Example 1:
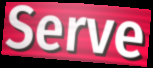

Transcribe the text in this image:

Serve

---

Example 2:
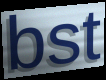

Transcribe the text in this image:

bst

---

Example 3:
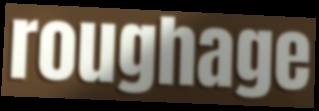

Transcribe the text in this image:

roughage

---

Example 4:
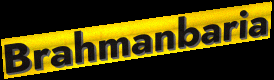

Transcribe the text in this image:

Brahmanbaria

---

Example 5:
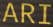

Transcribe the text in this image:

ARI